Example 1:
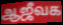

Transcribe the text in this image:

ஆஜீவக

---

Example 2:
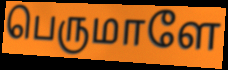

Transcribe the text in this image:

பெருமாளே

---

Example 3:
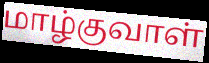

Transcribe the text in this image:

மாழ்குவாள்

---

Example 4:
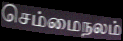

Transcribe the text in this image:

செம்மைநலம்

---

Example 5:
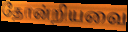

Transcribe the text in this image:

தோன்றியவை